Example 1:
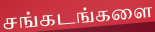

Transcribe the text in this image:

சங்கடங்களை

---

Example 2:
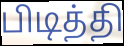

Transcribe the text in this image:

பிடித்தி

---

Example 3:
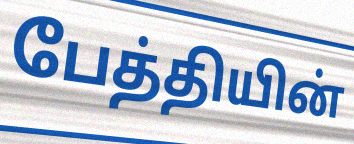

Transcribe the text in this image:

பேத்தியின்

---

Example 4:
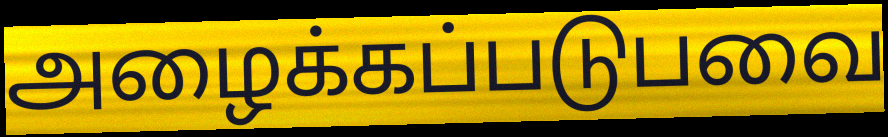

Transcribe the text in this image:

அழைக்கப்படுபவை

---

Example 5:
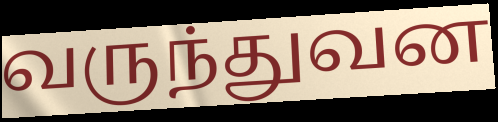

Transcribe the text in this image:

வருந்துவன